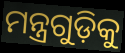
ମନ୍ତ୍ରଗୁଡ଼ିକୁ